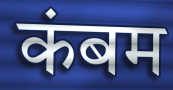
कंबम